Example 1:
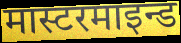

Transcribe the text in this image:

मास्टरमाइन्ड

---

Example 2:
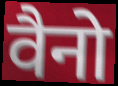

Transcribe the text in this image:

वैनो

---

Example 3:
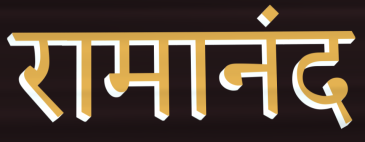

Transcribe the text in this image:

रामानंद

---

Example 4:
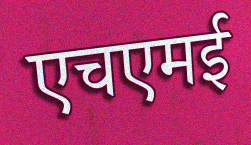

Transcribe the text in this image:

एचएमई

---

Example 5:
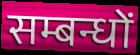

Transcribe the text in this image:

सम्बन्धों